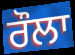
ਰੌਲਾ